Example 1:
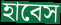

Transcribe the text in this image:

হাবেস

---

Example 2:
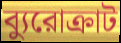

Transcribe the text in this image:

ব্যুরোক্রাট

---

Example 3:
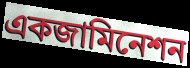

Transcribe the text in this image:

একজামিনেশন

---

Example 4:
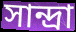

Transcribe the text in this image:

সান্দ্রা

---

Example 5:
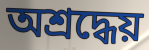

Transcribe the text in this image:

অশ্রদ্ধেয়